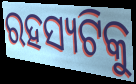
ରହସ୍ୟଟିକୁ